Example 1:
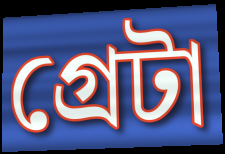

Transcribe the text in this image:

গ্রেটা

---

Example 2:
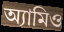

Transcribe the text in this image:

অ্যামিও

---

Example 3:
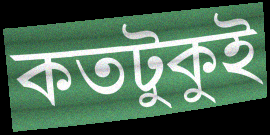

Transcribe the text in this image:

কতটুকুই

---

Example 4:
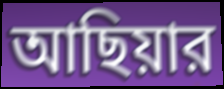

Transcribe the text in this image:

আছিয়ার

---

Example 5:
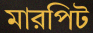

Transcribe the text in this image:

মারপিট